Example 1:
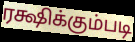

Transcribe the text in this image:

ரக்ஷிக்கும்படி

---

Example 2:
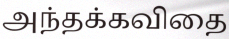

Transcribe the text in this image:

அந்தக்கவிதை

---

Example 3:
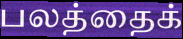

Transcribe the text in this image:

பலத்தைக்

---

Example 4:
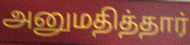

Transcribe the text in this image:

அனுமதித்தார்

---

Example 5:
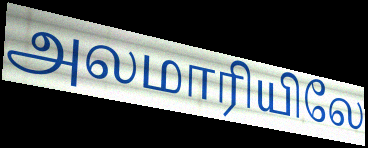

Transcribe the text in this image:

அலமாரியிலே